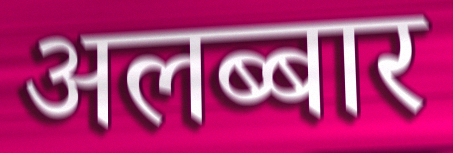
अलब्बार